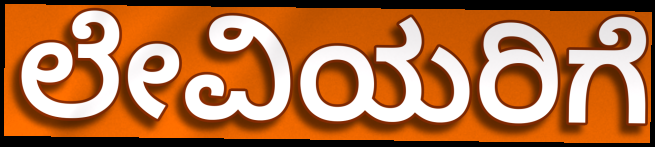
ಲೇವಿಯರಿಗೆ